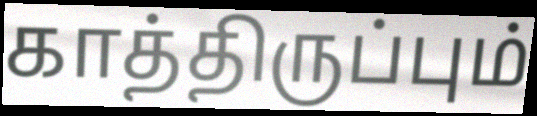
காத்திருப்பும்